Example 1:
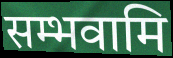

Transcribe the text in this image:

सम्भवामि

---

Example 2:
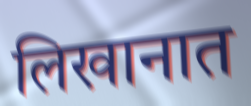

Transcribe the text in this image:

लिखानात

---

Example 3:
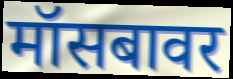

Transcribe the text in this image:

मॉसबावर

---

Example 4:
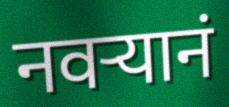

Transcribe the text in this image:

नवऱ्यानं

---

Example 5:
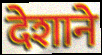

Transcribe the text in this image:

देशाने